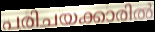
പരിചയക്കാരിൽ